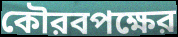
কৌরবপক্ষের